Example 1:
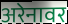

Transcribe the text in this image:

अरेनावर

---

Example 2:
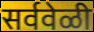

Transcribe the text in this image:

सर्ववेळी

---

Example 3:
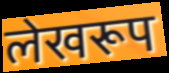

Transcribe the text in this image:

लेखरूप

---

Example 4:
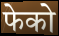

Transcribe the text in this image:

फेको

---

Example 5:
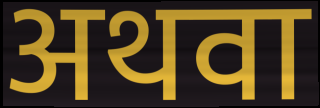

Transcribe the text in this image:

अथवा